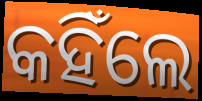
କହିଁଲେ